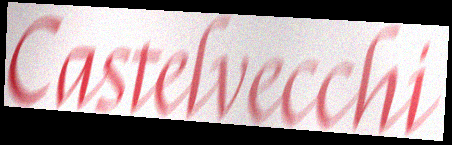
Castelvecchi